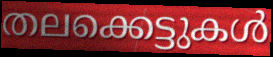
തലക്കെട്ടുകൾ